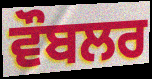
ਵੌਬਲਰ